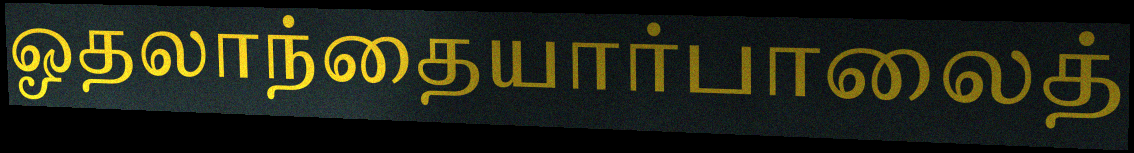
ஓதலாந்தையார்பாலைத்